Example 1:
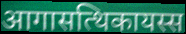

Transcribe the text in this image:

आगासत्थिकायस्स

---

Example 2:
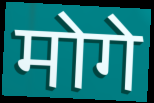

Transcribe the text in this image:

मोगे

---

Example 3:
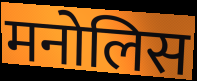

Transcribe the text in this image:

मनोलिस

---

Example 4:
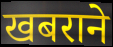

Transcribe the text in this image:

खबराने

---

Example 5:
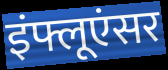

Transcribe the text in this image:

इंफ्लूएंसर